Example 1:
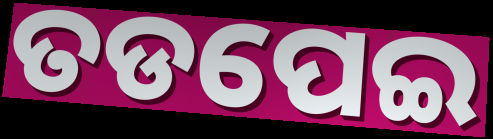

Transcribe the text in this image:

ତଡପେଇ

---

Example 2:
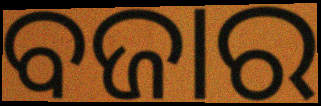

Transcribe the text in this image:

ବଜାର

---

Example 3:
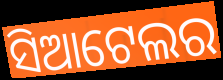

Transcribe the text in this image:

ସିଆଟେଲର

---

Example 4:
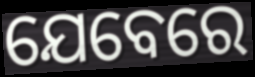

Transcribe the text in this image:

ଯେବେରେ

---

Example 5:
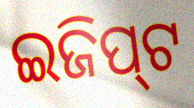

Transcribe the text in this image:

ଇଜିପ୍‍ଟ